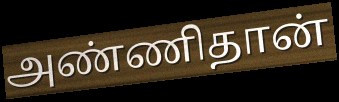
அண்ணிதான்